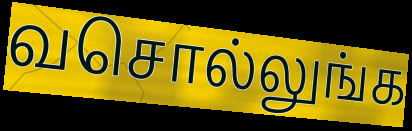
வசொல்லுங்க